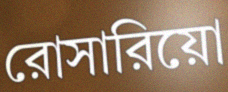
রোসারিয়ো